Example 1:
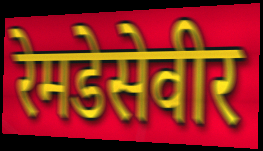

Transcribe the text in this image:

रेमडेसेवीर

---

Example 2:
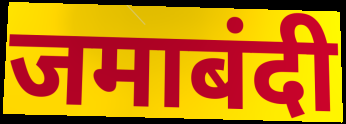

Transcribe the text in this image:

जमाबंदी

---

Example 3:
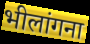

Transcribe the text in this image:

भीलांगना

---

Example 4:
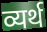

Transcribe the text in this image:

व्यर्थ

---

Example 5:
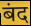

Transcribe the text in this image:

बंद